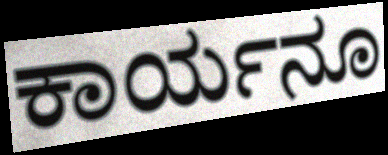
ಕಾರ್ಯನೂ